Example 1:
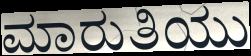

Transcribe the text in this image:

ಮಾರುತಿಯು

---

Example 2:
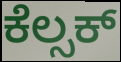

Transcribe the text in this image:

ಕೆಲ್ಸಕ್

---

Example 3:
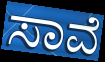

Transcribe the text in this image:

ಸಾವೆ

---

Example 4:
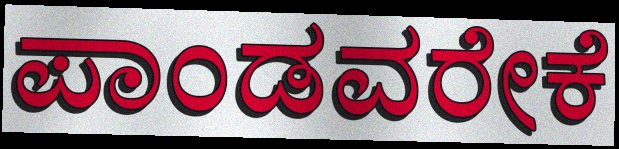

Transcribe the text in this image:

ಪಾಂಡವರೇಕೆ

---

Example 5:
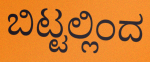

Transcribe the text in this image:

ಬಿಟ್ಟಲ್ಲಿಂದ